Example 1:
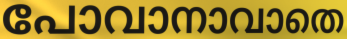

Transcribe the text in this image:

പോവാനാവാതെ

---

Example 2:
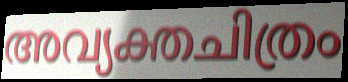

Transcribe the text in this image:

അവ്യക്തചിത്രം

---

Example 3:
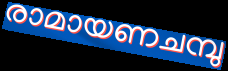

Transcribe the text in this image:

രാമായണചമ്പു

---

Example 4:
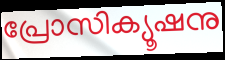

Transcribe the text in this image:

പ്രോസിക്യൂഷനു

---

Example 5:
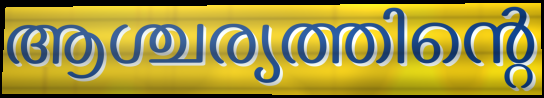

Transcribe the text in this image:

ആശ്ചര്യത്തിന്റെ